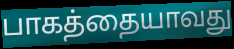
பாகத்தையாவது